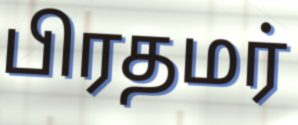
பிரதமர்